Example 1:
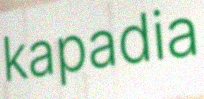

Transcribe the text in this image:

kapadia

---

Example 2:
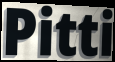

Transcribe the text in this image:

Pitti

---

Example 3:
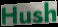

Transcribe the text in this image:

Hush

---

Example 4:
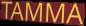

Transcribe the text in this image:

TAMMA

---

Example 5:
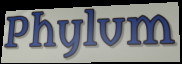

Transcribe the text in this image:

Phylum